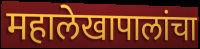
महालेखापालांचा